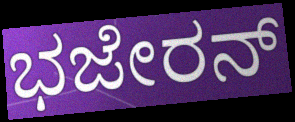
ಭಜೇರನ್